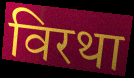
विरथा